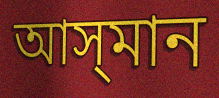
আস্‌মান